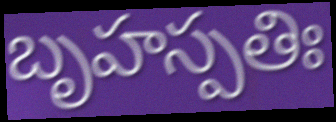
బృహస్పతిః